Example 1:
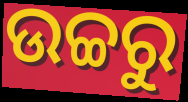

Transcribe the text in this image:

ଉଚ୍ଚରୁ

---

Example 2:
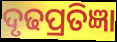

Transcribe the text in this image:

ଦୃଢପ୍ରତିଜ୍ଞା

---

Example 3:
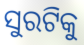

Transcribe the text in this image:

ସୁରଟିକୁ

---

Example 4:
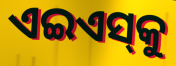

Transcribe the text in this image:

ଏଇଏସ୍‌କୁ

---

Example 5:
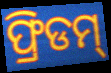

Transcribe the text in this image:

ଫ୍ରିଡମ୍